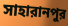
সাহারানপুর